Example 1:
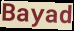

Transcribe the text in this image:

Bayad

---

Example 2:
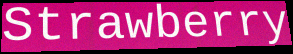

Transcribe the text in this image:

Strawberry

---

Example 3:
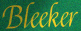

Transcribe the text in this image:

Bleeker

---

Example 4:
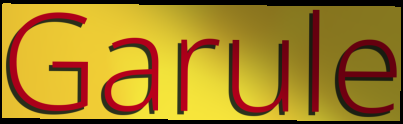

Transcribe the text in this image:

Garule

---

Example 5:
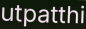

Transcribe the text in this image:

utpatthi